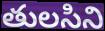
తులసిని